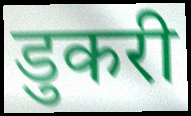
डुकरी